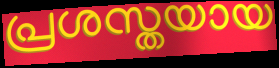
പ്രശസ്തയായ